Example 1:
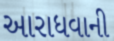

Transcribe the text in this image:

આરાધવાની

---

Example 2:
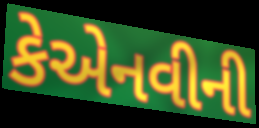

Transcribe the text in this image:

કેએનવીની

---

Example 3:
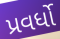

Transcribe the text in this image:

પ્રવર્ધો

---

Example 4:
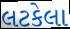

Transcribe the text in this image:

લટકેલા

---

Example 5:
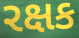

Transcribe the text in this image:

રક્ષક